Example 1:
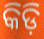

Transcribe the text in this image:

କିଡ଼ି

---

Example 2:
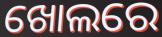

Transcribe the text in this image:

ଖୋଲରେ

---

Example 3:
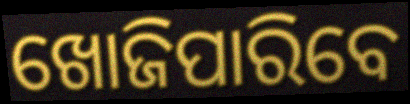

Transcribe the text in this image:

ଖୋଜିପାରିବେ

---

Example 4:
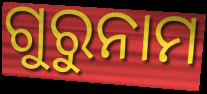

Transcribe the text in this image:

ଗୁରୁନାମ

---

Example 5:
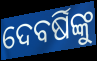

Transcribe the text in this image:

ଦେବର୍ଷିଙ୍କୁ